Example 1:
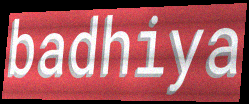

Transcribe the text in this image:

badhiya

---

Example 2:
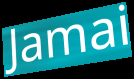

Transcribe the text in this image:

Jamai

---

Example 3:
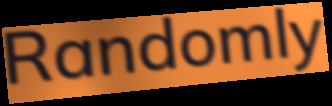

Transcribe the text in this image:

Randomly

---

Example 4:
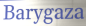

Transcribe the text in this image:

Barygaza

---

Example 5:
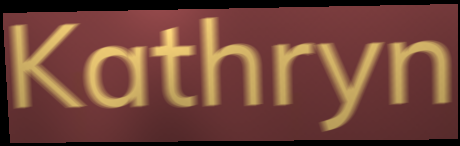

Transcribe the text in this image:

Kathryn